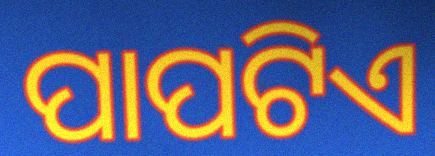
ପାପଟିଏ